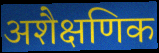
अशैक्षणिक